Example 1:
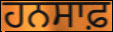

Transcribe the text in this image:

ਹਨਸਾਫ਼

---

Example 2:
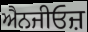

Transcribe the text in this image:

ਐਨਜੀਓਜ਼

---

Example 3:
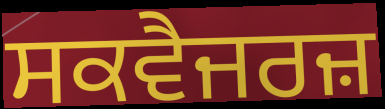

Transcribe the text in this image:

ਸਕਵੈਜਰਜ਼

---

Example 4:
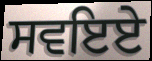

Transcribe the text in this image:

ਸਵਇਏ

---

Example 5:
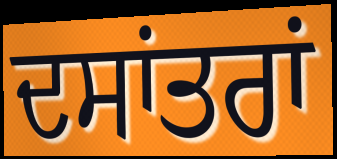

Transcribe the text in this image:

ਦਸਾਂਤਰਾਂ